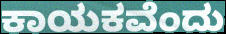
ಕಾಯಕವೆಂದು